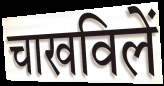
चाखविलें